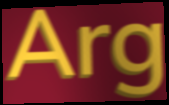
Arg